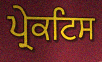
ਪ੍ਰੇਕਟਿਸ